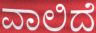
ವಾಲಿದೆ